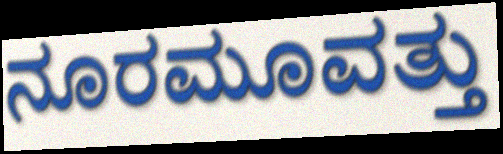
ನೂರಮೂವತ್ತು